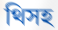
থিসহ